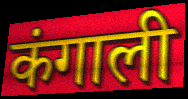
कंगाली